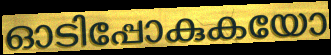
ഓടിപ്പോകുകയോ